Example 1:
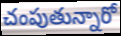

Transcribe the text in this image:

చంపుతున్నారో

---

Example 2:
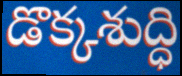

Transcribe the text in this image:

డొక్కశుద్ధి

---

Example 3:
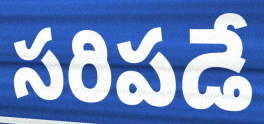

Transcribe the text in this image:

సరిపడే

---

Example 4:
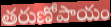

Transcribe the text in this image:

తరుణోపాయం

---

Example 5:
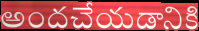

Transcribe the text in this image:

అందచేయడానికి